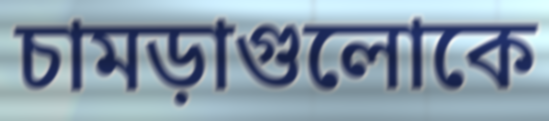
চামড়াগুলোকে